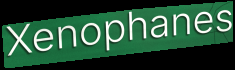
Xenophanes